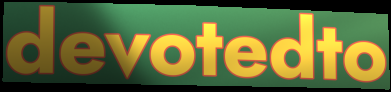
devotedto